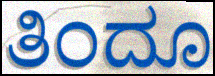
ತಿಂದೂ